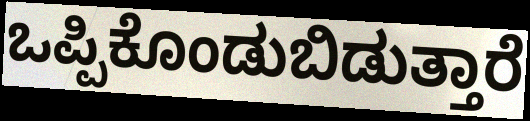
ಒಪ್ಪಿಕೊಂಡುಬಿಡುತ್ತಾರೆ